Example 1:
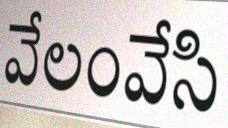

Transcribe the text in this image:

వేలంవేసి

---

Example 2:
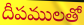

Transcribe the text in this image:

దీపములతో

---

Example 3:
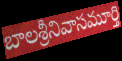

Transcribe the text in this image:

బాలశ్రీనివాసమూర్తి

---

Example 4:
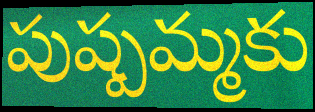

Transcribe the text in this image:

పుష్పమ్మకు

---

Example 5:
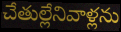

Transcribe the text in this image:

చేతుల్లేనివాళ్లను